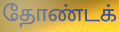
தோண்டக்